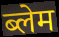
ब्लेम